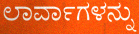
ಲಾರ್ವಾಗಳನ್ನು